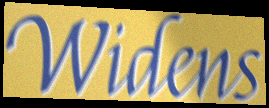
Widens